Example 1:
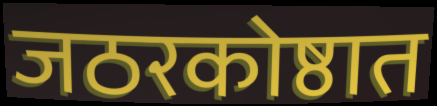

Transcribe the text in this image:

जठरकोष्ठात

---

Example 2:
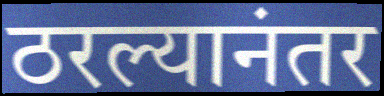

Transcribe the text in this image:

ठरल्यानंतर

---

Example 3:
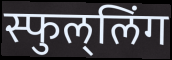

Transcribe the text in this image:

स्फुल्लिंग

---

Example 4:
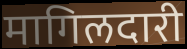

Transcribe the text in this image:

मागिलदारी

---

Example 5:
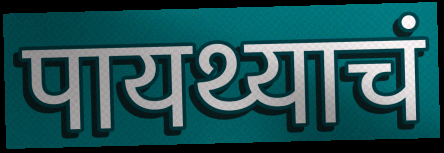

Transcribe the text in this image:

पायथ्याचं